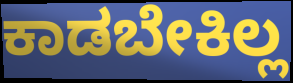
ಕಾಡಬೇಕಿಲ್ಲ